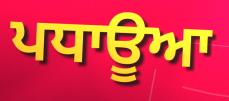
ਪਧਾਊਆ